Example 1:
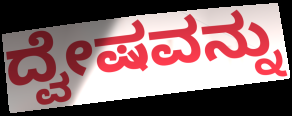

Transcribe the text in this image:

ದ್ವೇಷವನ್ನು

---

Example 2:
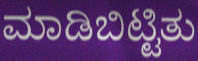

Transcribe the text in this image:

ಮಾಡಿಬಿಟ್ಟಿತು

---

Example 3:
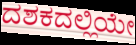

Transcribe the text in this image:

ದಶಕದಲ್ಲಿಯೇ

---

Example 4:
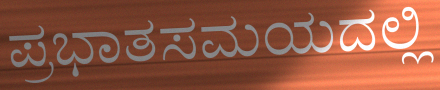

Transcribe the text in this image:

ಪ್ರಭಾತಸಮಯದಲ್ಲಿ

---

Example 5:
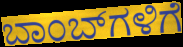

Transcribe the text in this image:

ಬಾಂಬ್‌ಗಳಿಗೆ